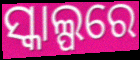
ସ୍କାଲ୍ପରେ